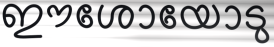
ഈശോയോടു